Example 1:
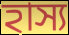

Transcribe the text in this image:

হাস্য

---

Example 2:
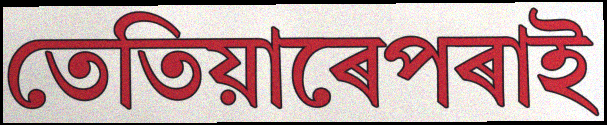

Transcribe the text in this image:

তেতিয়াৰেপৰাই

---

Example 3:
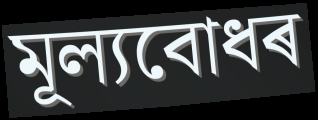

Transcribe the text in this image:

মূল্যবোধৰ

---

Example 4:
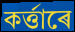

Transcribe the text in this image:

কৰ্ত্তাৰে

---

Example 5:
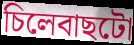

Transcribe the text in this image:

চিলেবাছটো